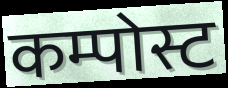
कम्पोस्ट